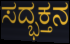
ಸದ್ಭಕ್ತನ